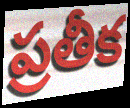
ప్రతీక